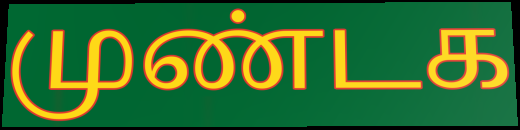
முண்டக